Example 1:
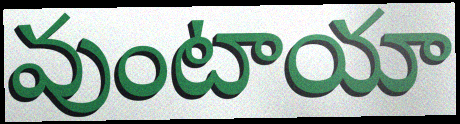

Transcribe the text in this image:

వుంటాయా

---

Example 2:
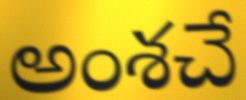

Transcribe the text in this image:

అంశచే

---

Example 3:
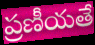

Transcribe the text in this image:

ప్రణీయతే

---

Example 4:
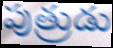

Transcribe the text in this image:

పుత్రుడు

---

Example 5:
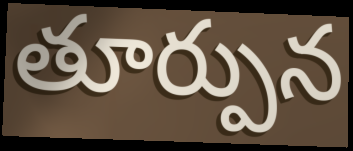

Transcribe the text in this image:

తూర్పున